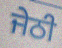
ਜੇਠੀ